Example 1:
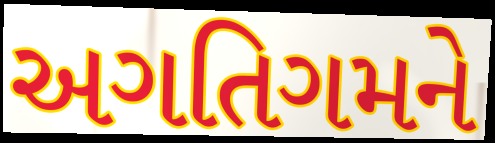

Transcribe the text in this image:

અગતિગમને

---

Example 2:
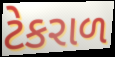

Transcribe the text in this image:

ટેકરાળ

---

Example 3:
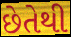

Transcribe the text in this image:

છેતેથી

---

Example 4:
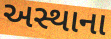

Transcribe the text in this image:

અસ્થાના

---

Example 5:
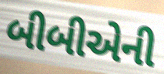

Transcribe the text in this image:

બીબીએની